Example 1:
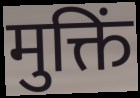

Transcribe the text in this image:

मुक्तिं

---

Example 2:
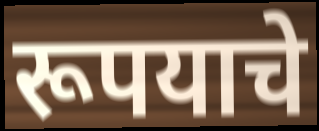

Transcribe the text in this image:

रूपयाचे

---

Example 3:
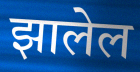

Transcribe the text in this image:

झालेल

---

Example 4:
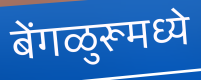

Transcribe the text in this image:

बेंगळुरूमध्ये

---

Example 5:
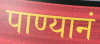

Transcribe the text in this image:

पाण्यानं